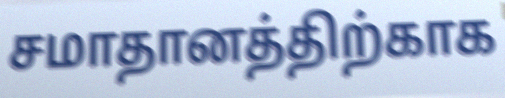
சமாதானத்திற்காக